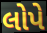
લોપે